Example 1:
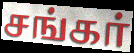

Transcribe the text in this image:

சங்கர்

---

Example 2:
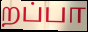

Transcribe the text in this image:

றப்பா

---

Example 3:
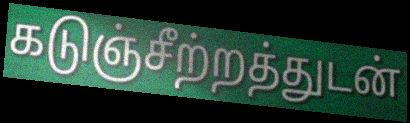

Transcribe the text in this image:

கடுஞ்சீற்றத்துடன்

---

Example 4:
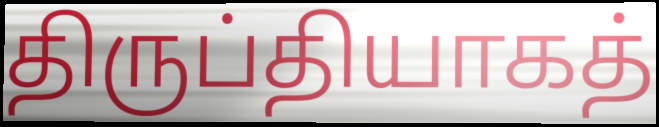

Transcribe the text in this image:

திருப்தியாகத்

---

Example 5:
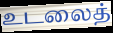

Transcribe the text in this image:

உடலைத்